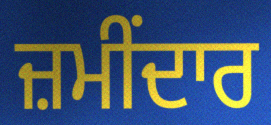
ਜ਼ਮੀਂਦਾਰ